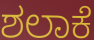
ಶಲಾಕೆ